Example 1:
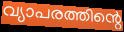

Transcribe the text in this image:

വ്യാപരത്തിന്റെ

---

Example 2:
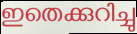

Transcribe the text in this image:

ഇതെക്കുറിച്ചു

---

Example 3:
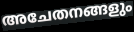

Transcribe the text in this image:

അചേതനങ്ങളും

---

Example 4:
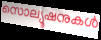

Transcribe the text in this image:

സൊല്യൂഷനുകൾ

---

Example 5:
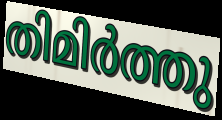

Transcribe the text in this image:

തിമിർത്തു